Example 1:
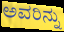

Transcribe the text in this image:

ಅವರಿನ್ನು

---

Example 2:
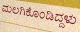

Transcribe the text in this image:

ಮಲಗಿಕೊಂಡಿದ್ದಳು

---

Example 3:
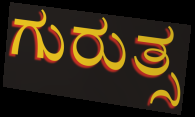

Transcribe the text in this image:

ಗುರುತ್ಸ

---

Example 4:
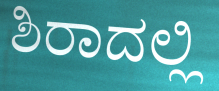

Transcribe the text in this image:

ಶಿರಾದಲ್ಲಿ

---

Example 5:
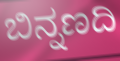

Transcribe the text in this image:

ಬಿನ್ನಣದಿ